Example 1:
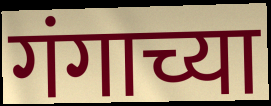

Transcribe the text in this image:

गंगाच्या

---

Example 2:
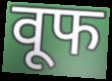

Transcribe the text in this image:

वूफ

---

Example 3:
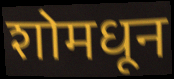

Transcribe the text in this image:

शोमधून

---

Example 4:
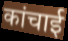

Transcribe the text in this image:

कांचाई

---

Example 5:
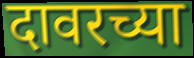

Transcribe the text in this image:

दावरच्या